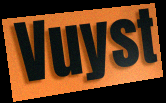
Vuyst